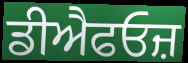
ਡੀਐਫਓਜ਼